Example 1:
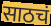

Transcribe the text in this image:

साठचं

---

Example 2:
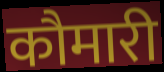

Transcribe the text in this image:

कौमारी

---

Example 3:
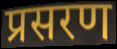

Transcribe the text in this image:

प्रसरण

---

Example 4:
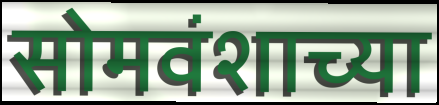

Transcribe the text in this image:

सोमवंशाच्या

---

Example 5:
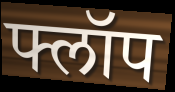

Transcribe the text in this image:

फ्लॉप